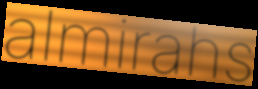
almirahs